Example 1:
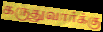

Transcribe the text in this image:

கருதுவார்க்கு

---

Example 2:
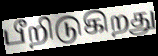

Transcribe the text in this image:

பீறிடுகிறது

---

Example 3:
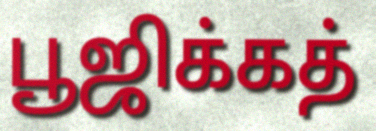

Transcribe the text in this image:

பூஜிக்கத்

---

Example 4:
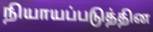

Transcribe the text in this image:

நியாயப்படுத்தின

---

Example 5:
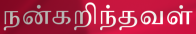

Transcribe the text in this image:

நன்கறிந்தவள்